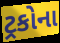
ટ્રકોના